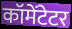
कॉमेंटेटर